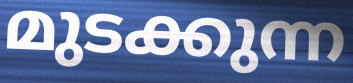
മുടക്കുന്ന